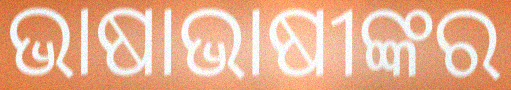
ଭାଷାଭାଷୀଙ୍କର